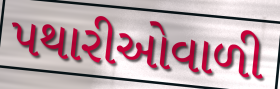
પથારીઓવાળી